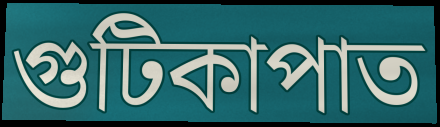
গুটিকাপাত